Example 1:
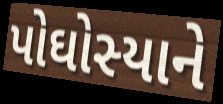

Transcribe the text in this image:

પોઘોસ્યાને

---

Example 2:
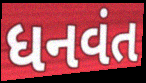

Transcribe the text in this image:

ધનવંત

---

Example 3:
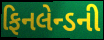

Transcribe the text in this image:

ફિનલેન્ડની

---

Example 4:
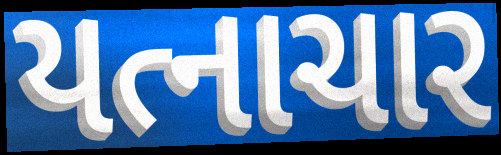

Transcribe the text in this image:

યત્નાચાર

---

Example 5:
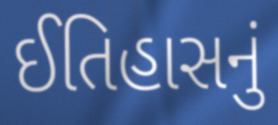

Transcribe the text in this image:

ઈતિહાસનું